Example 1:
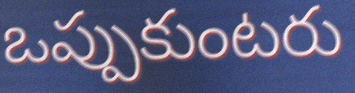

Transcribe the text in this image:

ఒప్పుకుంటరు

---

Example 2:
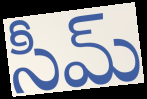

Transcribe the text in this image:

సీమ్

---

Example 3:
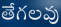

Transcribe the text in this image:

తేగలవు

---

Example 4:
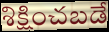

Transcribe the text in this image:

శిక్షించబడే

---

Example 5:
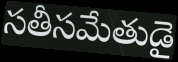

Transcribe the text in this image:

సతీసమేతుడై